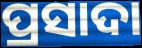
ପ୍ରସାଦା